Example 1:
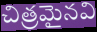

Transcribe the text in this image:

చిత్రమైనవి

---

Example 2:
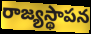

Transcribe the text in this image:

రాజ్యస్థాపన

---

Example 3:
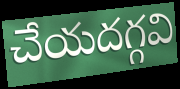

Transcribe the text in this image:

చేయదగ్గవి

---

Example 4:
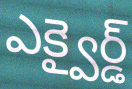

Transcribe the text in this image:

ఎక్వైర్డ్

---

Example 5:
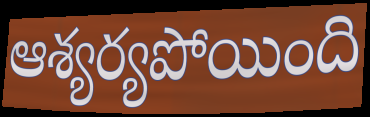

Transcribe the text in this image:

ఆశ్యర్యపోయింది